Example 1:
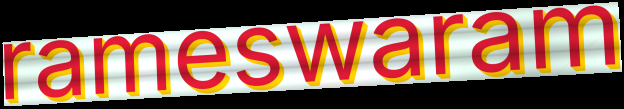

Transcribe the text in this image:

rameswaram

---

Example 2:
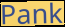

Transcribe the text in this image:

Pank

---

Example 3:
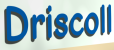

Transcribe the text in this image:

Driscoll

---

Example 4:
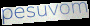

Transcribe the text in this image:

pesuvom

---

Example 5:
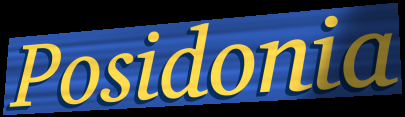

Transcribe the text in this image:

Posidonia